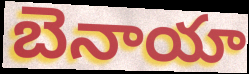
బెనాయా